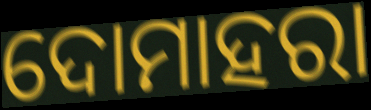
ଦୋମାହରା